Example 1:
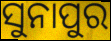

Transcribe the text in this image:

ସୁନାପୁର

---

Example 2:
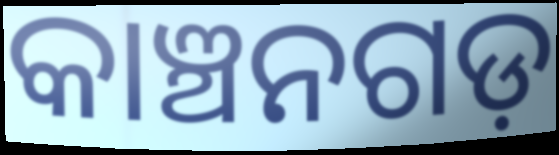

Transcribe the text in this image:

କାଞ୍ଚନଗଡ଼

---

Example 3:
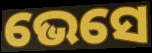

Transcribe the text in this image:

ଭେସେ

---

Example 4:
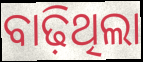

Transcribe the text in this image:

ବାଢ଼ିଥିଲା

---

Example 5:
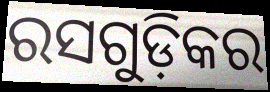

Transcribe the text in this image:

ରସଗୁଡ଼ିକର